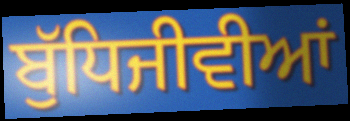
ਬੁੱਧਿਜੀਵੀਆਂ